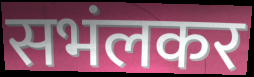
सभंलकर